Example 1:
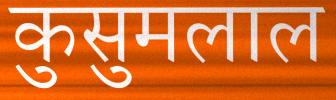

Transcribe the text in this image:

कुसुमलाल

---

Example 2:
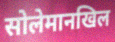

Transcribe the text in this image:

सोलेमानखिल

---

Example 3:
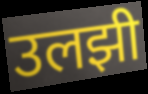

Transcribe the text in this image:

उलझी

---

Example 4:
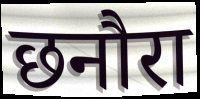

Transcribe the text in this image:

छनौरा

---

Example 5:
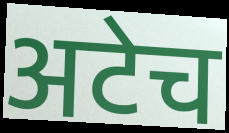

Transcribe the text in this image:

अटेच